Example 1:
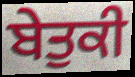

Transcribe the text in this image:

ਬੇਤੁਕੀ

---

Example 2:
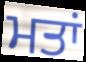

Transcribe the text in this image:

ਮਤਾਂ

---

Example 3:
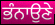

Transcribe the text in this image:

ਭੰਨਾਉਣੇ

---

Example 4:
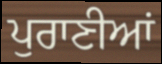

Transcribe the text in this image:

ਪੁਰਾਣੀਆਂ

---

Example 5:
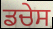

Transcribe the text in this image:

ਡਚੇਸ